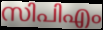
സിപിഎം